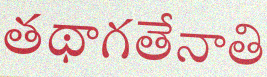
తథాగతేనాతి